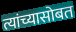
त्यांच्यासोबत